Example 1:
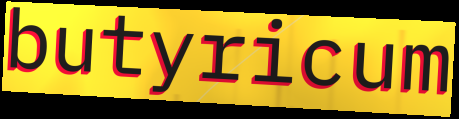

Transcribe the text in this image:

butyricum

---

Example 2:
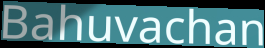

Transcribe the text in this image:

Bahuvachan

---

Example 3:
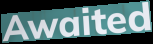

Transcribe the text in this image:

Awaited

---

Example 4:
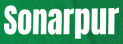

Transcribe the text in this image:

Sonarpur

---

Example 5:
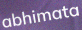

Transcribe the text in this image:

abhimata